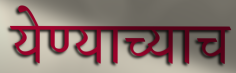
येण्याच्याच